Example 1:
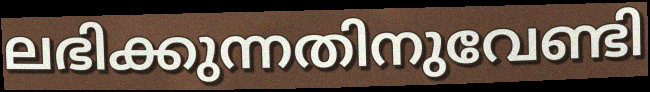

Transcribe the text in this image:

ലഭിക്കുന്നതിനുവേണ്ടി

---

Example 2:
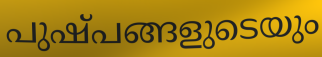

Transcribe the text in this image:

പുഷ്പങ്ങളുടെയും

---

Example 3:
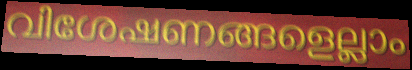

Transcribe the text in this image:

വിശേഷണങ്ങളെല്ലാം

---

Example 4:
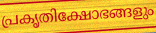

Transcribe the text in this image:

പ്രകൃതിക്ഷോഭങ്ങളും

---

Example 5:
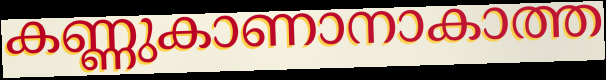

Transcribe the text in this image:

കണ്ണുകാണാനാകാത്ത